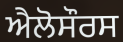
ਐਲੋਸੌਰਸ